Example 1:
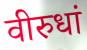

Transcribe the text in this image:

वीरुधां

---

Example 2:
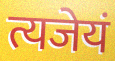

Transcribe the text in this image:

त्यजेयं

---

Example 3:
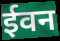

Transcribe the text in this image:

ईवन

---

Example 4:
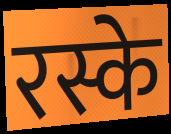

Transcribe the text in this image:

रस्के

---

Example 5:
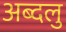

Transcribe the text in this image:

अब्दलु